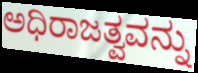
ಅಧಿರಾಜತ್ವವನ್ನು